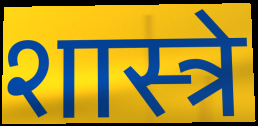
शास्त्रे